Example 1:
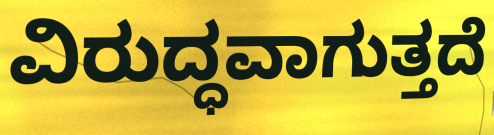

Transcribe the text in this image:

ವಿರುದ್ಧವಾಗುತ್ತದೆ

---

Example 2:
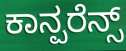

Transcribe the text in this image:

ಕಾನ್ಪರೆನ್ಸ್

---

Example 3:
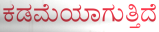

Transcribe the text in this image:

ಕಡಮೆಯಾಗುತ್ತಿದೆ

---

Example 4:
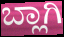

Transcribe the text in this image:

ಬ್ಲಾಗಿ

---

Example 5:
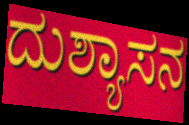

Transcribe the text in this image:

ದುಶ್ಯಾಸನ